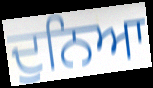
ਦੁਨਿਆ